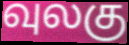
வுலகு